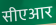
सीएआर